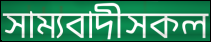
সাম্যবাদীসকল